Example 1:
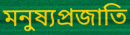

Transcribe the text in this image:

মনুষ্যপ্রজাতি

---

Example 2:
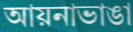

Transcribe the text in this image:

আয়নাভাঙা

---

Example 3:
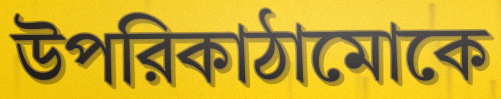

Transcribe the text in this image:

উপরিকাঠামোকে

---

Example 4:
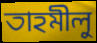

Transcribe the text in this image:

তাহমীলু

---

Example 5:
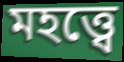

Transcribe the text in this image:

মহত্ত্বে